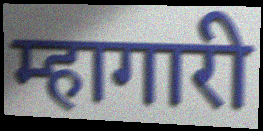
म्हागारी